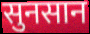
सुनसान